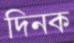
দিনক